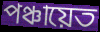
পঞ্চায়েত